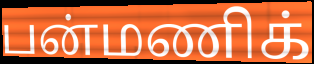
பன்மணிக்